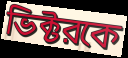
ভিক্টরকে